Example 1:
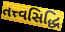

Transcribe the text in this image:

તત્ત્વસિદ્ધિ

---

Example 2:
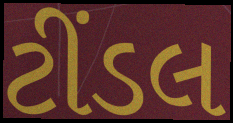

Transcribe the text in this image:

ટીંડલ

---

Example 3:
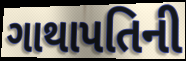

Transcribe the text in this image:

ગાથાપતિની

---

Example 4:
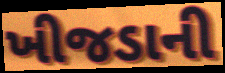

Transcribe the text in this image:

ખીજડાની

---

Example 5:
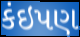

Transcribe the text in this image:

કંઇપણ